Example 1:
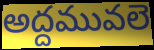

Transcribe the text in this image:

అద్దమువలె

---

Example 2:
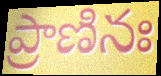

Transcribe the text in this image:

ప్రాణినః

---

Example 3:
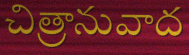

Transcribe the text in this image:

చిత్రానువాద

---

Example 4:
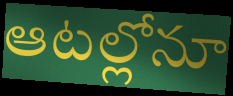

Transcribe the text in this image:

ఆటల్లోనూ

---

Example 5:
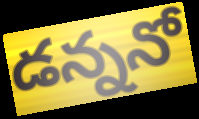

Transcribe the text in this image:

డన్ననో